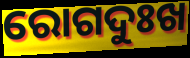
ରୋଗଦୁଃଖ